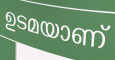
ഉടമയാണ്